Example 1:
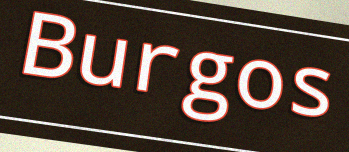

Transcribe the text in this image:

Burgos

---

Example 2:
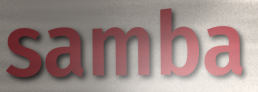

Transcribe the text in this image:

samba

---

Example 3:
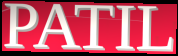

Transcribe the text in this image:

PATIL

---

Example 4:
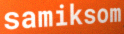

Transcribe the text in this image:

samiksom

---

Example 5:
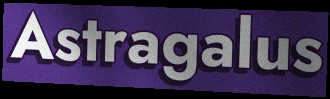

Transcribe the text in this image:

Astragalus